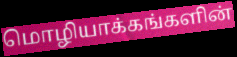
மொழியாக்கங்களின்